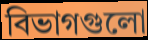
বিভাগগুলো